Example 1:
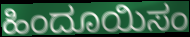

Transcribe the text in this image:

ಹಿಂದೂಯಿಸಂ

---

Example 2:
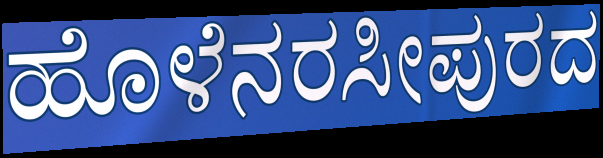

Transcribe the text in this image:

ಹೊಳೆನರಸೀಪುರದ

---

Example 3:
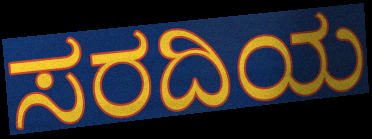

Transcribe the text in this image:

ಸರದಿಯ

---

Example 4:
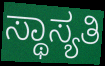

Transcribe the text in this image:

ಸ್ಥಾಸ್ಯತಿ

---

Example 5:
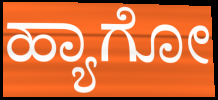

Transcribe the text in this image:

ಹ್ಯಾಗೋ